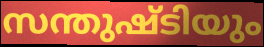
സന്തുഷ്ടിയും